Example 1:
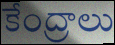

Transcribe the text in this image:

కేంద్రాలు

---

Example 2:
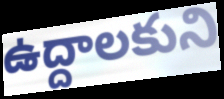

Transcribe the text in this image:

ఉద్దాలకుని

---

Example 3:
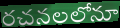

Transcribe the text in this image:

రచనలలోనూ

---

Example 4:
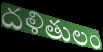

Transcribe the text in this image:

దళితులం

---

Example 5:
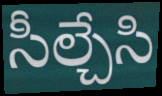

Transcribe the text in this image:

సీల్చేసి